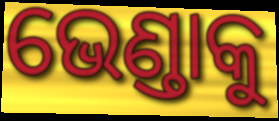
ଭେଣ୍ଡାକୁ